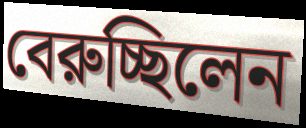
বেরুচ্ছিলেন